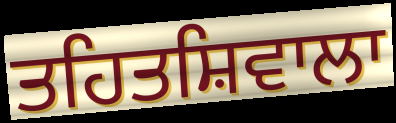
ਤਹਿਤਸ਼ਿਵਾਲਾ